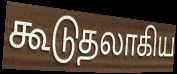
கூடுதலாகிய